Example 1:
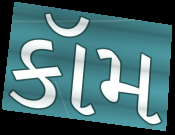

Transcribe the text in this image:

કૉમ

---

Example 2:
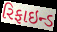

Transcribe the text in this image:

રિફાઇન્ડ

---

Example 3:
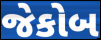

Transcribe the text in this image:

જેકોબ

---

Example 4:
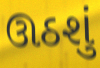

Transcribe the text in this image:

ઊઠશું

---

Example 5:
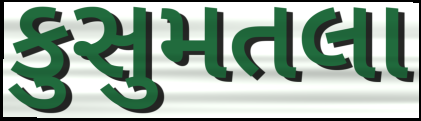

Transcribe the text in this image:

કુસુમતલા